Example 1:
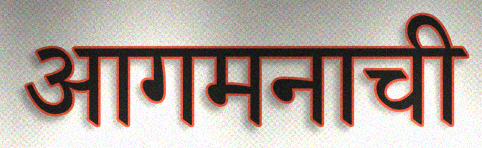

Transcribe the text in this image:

आगमनाची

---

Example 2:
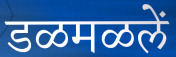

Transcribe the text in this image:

डळमळलें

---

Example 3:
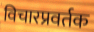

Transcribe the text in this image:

विचारप्रवर्तक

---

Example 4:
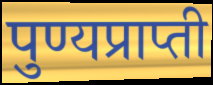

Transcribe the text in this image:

पुण्यप्राप्ती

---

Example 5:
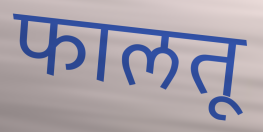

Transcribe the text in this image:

फालतू